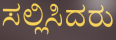
ಸಲ್ಲಿಸಿದರು